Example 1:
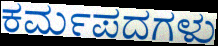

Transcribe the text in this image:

ಕರ್ಮಪದಗಳು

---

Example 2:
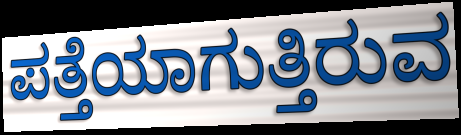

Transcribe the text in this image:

ಪತ್ತೆಯಾಗುತ್ತಿರುವ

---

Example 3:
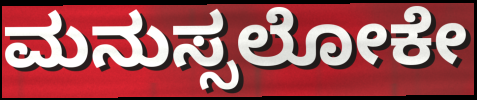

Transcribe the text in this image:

ಮನುಸ್ಸಲೋಕೇ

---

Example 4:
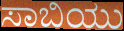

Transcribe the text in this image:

ಸಾಬಿಯು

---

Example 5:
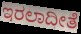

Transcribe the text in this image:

ಇರಲಾದೀತೆ